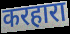
करहारा